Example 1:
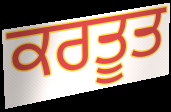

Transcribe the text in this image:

ਕਰਤੂਤ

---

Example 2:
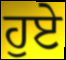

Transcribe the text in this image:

ਹੁਏ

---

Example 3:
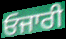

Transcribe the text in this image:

ਓਜਾਰੀ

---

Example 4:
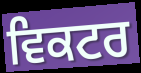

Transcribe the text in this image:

ਵਿਕਟਰ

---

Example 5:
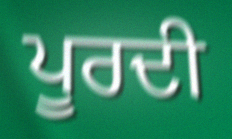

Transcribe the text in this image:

ਪੂਰਦੀ